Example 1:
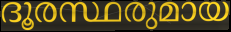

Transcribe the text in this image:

ദൂരസ്ഥരുമായ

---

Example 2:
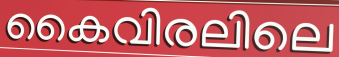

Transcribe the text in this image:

കൈവിരലിലെ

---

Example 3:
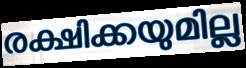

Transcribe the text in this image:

രക്ഷിക്കയുമില്ല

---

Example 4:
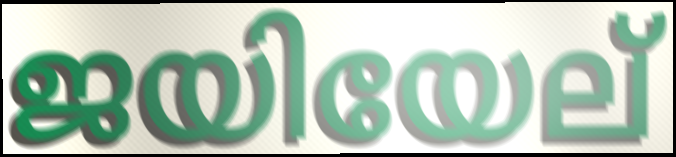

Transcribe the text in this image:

ജയിയേല്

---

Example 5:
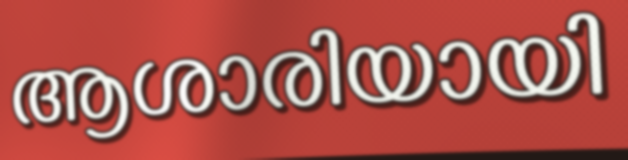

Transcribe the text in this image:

ആശാരിയായി